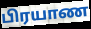
பிரயாண